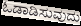
ಓಡಾಡಿಸುವುದು